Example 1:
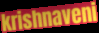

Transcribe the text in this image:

krishnaveni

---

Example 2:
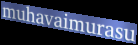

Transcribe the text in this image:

muhavaimurasu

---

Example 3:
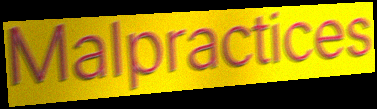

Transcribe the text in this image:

Malpractices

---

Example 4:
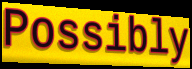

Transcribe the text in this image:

Possibly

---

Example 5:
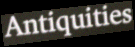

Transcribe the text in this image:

Antiquities